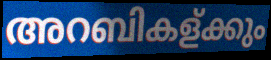
അറബികള്ക്കും